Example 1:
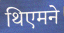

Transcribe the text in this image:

थिएमने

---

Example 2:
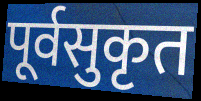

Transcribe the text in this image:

पूर्वसुकृत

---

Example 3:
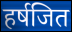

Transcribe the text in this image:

हर्षजित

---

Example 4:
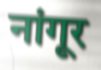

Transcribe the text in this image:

नांगूर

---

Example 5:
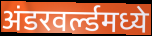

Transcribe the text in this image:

अंडरवर्ल्डमध्ये